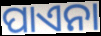
ପାଏନା